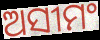
ଅସୀମଂ